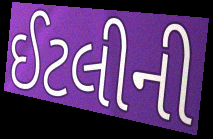
ઈટલીની